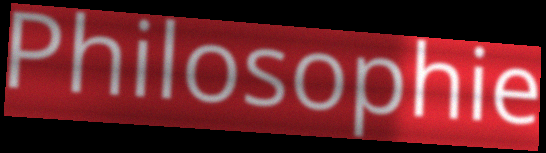
Philosophie